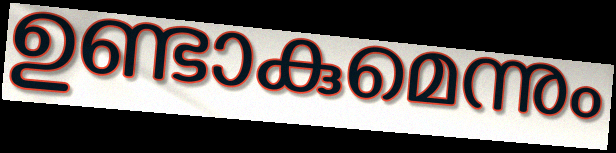
ഉണ്ടാകുമെന്നും